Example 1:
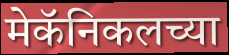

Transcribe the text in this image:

मेकॅनिकलच्या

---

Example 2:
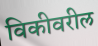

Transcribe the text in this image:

विकीवरील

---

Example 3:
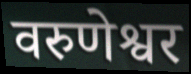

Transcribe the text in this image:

वरुणेश्वर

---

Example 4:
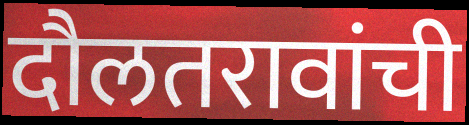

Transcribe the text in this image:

दौलतरावांची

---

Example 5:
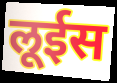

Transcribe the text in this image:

लूईस